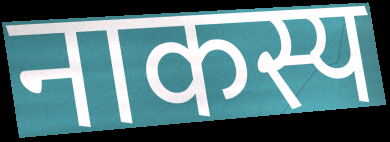
नाकस्य